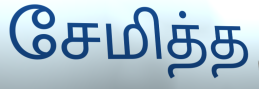
சேமித்த